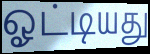
ஓட்டியது